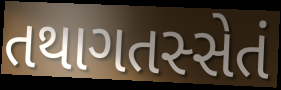
તથાગતસ્સેતં